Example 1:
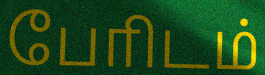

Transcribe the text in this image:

பேரிடம்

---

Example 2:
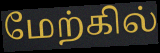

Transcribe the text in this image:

மேற்கில்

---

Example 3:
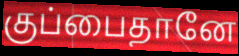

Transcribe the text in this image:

குப்பைதானே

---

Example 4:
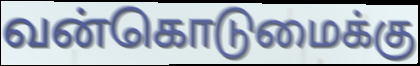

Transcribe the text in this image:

வன்கொடுமைக்கு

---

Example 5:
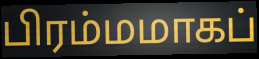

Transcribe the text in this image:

பிரம்மமாகப்